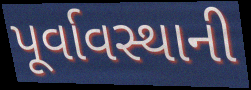
પૂર્વાવસ્થાની